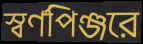
স্বর্ণপিঞ্জরে